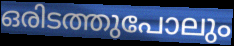
ഒരിടത്തുപോലും